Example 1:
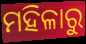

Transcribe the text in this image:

ମହିଳାରୁ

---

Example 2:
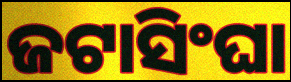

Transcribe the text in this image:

ଜଟାସିଂଘା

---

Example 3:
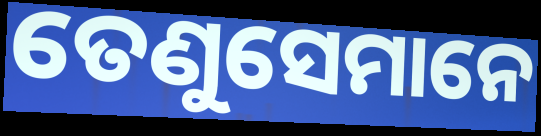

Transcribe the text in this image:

ତେଣୁସେମାନେ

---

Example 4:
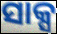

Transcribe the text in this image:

ସାକ୍ସ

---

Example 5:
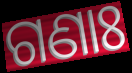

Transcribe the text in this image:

ଗଣାଃ